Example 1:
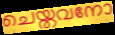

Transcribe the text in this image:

ചെയ്തവനോ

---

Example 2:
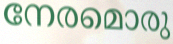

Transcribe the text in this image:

നേരമൊരു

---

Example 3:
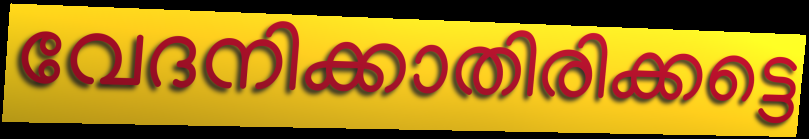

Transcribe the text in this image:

വേദനിക്കാതിരിക്കട്ടെ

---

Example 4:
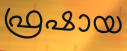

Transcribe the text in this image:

ഫ്രഷായ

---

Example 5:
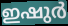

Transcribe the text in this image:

ഇഷുർ